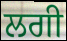
ਲਗੀ